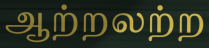
ஆற்றலற்ற